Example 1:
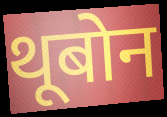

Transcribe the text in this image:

थूबोन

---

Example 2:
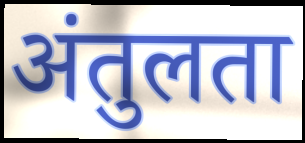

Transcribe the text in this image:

अंतुलता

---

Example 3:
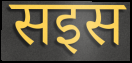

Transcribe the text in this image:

सइस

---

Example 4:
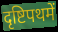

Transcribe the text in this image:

दृष्टिपथमें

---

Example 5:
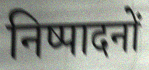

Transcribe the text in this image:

निष्पादनों